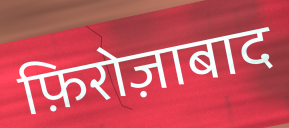
फ़िरोज़ाबाद